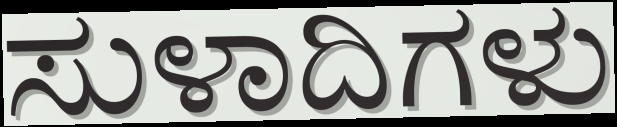
ಸುಳಾದಿಗಳು